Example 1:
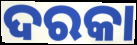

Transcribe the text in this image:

ଦରକା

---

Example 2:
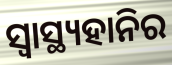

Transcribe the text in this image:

ସ୍ଵାସ୍ଥ୍ୟହାନିର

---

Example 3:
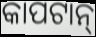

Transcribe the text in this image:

କାପଟାନ୍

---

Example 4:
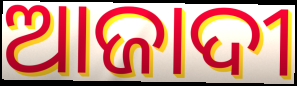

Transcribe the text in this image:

ଆଜାଦୀ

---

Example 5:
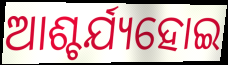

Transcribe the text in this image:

ଆଶ୍ଚର୍ଯ୍ୟହୋଇ